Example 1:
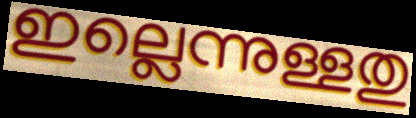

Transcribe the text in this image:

ഇല്ലെന്നുള്ളതു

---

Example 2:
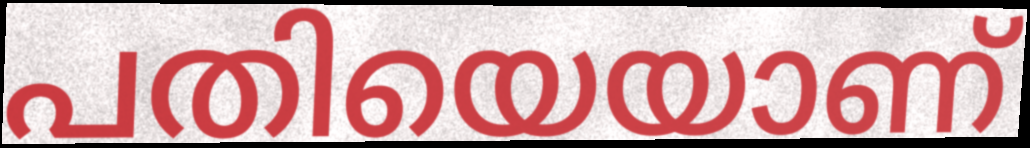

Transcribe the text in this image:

പതിയെയാണ്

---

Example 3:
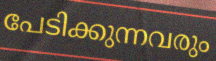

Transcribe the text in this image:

പേടിക്കുന്നവരും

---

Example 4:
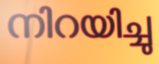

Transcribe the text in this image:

നിറയിച്ചു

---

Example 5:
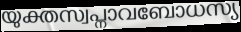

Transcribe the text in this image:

യുക്തസ്വപ്നാവബോധസ്യ